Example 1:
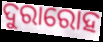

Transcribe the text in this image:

ଦୁରାରୋହ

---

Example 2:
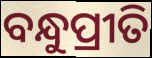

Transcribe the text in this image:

ବନ୍ଧୁପ୍ରୀତି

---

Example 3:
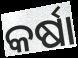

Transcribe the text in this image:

କର୍ଷା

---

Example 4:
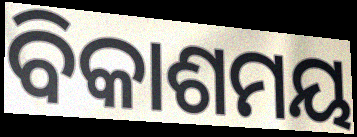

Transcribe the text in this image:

ବିକାଶମୟ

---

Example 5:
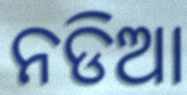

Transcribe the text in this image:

ନଡିଆ